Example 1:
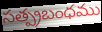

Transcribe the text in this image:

సత్ప్రబంధము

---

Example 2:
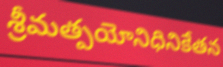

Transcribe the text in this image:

శ్రీమత్పయోనిధినికేతన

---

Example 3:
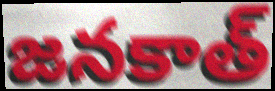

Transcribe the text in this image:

జనకాత్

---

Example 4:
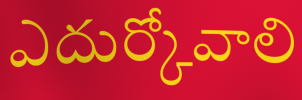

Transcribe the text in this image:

ఎదుర్కోవాలి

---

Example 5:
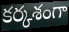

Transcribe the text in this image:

కర్కశంగా